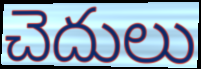
చెదులు